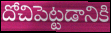
దోచిపెట్టడానికి